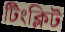
টিংক্লিট